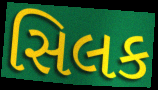
સિલક